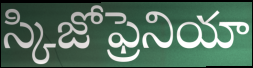
స్కిజోఫ్రెనియా